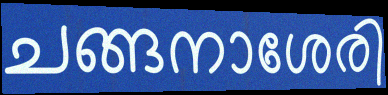
ചങ്ങനാശേരി